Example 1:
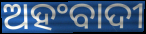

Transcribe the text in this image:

ଅହଂବାଦୀ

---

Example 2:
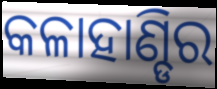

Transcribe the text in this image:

କଳାହାଣ୍ଡିର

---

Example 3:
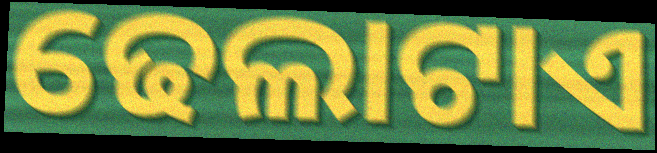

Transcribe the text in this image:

ଢେଲାଟାଏ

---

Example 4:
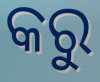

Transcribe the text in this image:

କରୁ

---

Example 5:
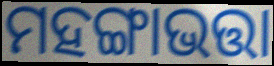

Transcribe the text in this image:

ମହଙ୍ଗାଭତ୍ତା